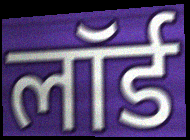
लॉर्ड